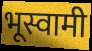
भूस्वामी